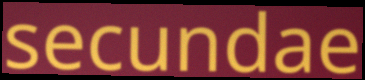
secundae